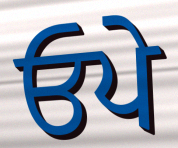
ਓਪੇ